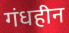
गंधहीन